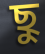
ছু